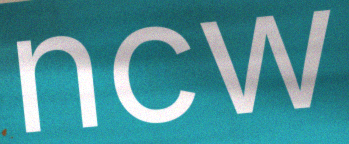
ncw